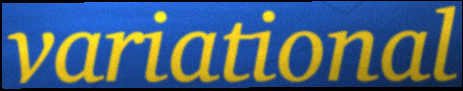
variational